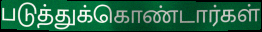
படுத்துக்கொண்டார்கள்